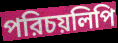
পরিচয়লিপি